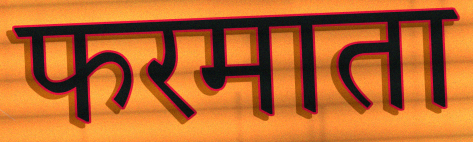
फरमाता